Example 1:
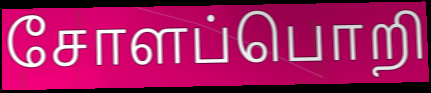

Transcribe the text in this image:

சோளப்பொறி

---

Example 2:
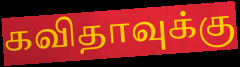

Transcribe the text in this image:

கவிதாவுக்கு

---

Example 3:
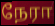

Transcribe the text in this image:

நேரா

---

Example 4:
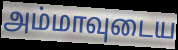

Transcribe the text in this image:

அம்மாவுடைய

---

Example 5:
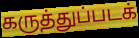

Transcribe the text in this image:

கருத்துப்படக்